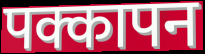
पक्कापन